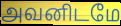
அவனிடமே